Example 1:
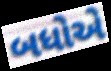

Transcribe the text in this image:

બધોએ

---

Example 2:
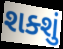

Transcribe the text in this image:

શક્શું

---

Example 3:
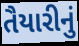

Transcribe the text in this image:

તૈયારીનું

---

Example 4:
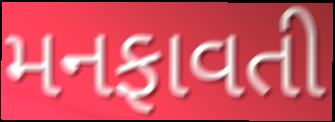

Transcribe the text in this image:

મનફાવતી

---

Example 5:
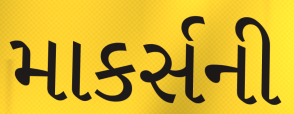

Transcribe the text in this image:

માકર્સની